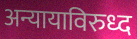
अन्यायाविरुध्द